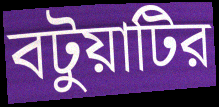
বটুয়াটির